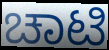
ಚಾಟಿ